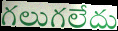
గలుగలేదు